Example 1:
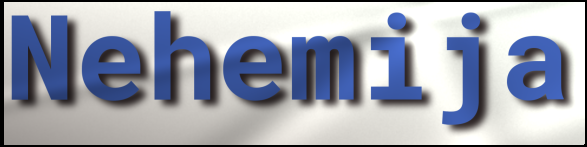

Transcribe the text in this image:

Nehemija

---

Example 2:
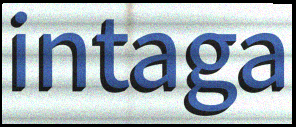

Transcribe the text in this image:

intaga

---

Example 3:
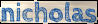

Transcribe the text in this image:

nicholas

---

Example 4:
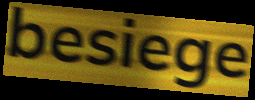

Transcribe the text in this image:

besiege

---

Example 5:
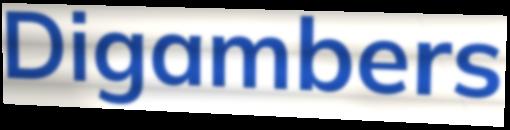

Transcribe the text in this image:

Digambers